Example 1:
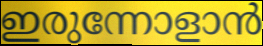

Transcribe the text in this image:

ഇരുന്നോളാൻ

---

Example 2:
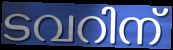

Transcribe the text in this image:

ടവറിന്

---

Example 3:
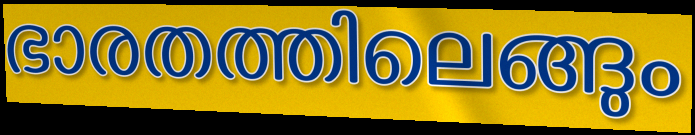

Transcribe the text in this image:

ഭാരതത്തിലെങ്ങും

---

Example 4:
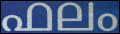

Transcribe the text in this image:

ഫലം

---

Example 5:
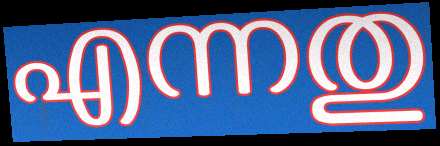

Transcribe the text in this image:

എന്നതു